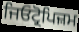
ਜਿਓਟ੍ਰੋਪਿਜ਼ਮ